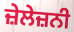
ਜ਼ੇਲੇਜ਼ਨੀ